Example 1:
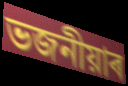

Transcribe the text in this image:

ভজনীয়াৰ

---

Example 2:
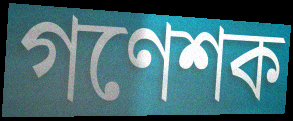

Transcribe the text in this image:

গণেশক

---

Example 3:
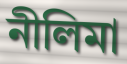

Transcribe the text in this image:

নীলিমা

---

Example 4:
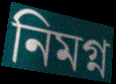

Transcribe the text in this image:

নিমগ্ন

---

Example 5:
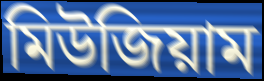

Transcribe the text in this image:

মিউজিয়াম